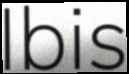
Ibis